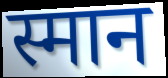
स्मान